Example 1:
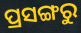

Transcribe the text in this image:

ପ୍ରସଙ୍ଗରୁ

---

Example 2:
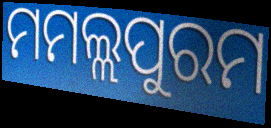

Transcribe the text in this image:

ମମଲ୍ଲପୁରମ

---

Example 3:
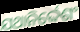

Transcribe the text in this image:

ଯଥାନିର୍ଦ୍ଦେଶଂ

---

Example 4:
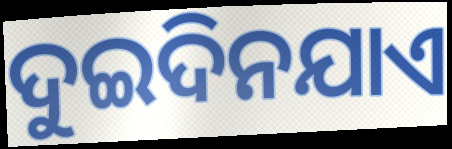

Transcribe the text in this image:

ଦୁଇଦିନଯାଏ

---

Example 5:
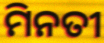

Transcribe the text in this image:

ମିନତୀ